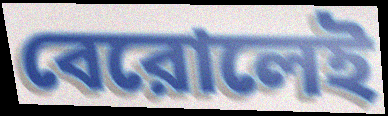
বেরোলেই